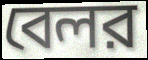
বেলর